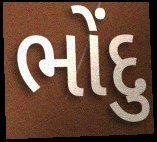
ભોંદુ